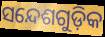
ସନ୍ଦେଶଗୁଡ଼ିକ